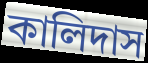
কালিদাস